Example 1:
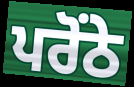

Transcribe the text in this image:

ਪਰੋਂਠੇ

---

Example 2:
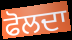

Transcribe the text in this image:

ਫੋਲਦਾ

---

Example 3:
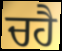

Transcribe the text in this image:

ਚਹੈ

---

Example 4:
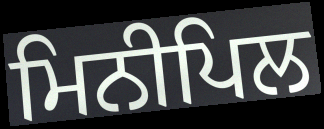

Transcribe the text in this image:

ਮਿਨੀਪਿਲ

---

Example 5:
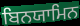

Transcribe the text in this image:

ਬਿਨਯਾਮਿਨ